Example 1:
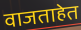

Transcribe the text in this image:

वाजताहेत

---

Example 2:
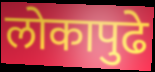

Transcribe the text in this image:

लोकापुढे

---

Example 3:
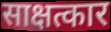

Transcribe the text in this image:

साक्षत्कार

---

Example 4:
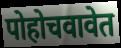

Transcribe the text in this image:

पोहोचवावेत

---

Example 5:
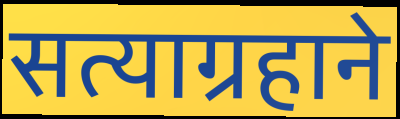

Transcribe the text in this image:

सत्याग्रहाने